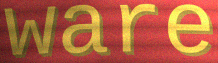
ware